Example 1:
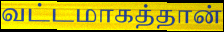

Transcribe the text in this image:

வட்டமாகத்தான்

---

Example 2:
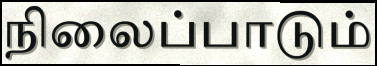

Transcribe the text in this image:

நிலைப்பாடும்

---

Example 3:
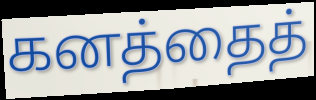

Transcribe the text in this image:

கனத்தைத்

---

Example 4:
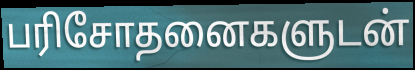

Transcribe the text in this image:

பரிசோதனைகளுடன்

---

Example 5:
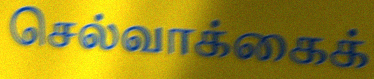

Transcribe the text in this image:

செல்வாக்கைக்